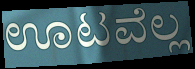
ಊಟವೆಲ್ಲ